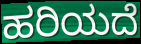
ಹರಿಯದೆ